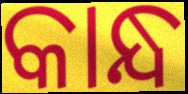
କାନ୍ଧ